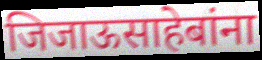
जिजाऊसाहेबांना